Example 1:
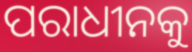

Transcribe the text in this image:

ପରାଧୀନକୁ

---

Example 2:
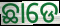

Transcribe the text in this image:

ଛାଡେ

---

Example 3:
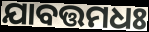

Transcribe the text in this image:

ଯାବତ୍ତମଧଃ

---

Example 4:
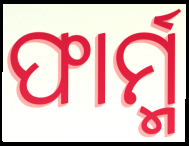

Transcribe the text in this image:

ଫାର୍ମ୍ମ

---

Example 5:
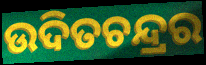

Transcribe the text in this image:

ଉଦିତଚନ୍ଦ୍ରର